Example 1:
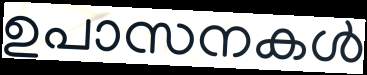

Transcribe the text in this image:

ഉപാസനകൾ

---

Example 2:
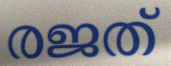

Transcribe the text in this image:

രജത്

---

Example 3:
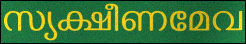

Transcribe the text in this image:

സ്യക്ഷീണമേവ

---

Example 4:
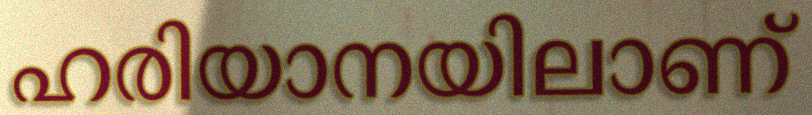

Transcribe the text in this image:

ഹരിയാനയിലാണ്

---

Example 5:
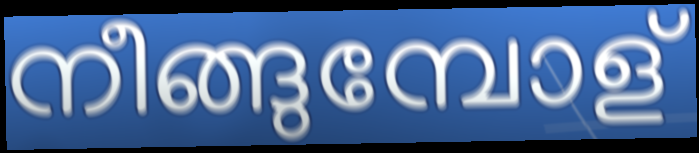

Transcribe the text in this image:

നീങ്ങുമ്പോള്